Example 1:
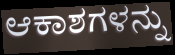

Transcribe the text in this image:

ಆಕಾಶಗಳನ್ನು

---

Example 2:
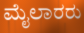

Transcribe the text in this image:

ಮೈಲಾರರು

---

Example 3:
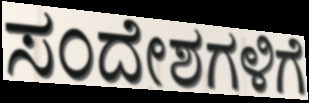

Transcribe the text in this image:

ಸಂದೇಶಗಳಿಗೆ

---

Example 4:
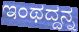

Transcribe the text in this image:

ಇಂಥದ್ದನ್ನ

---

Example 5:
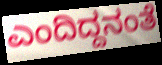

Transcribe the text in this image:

ಎಂದಿದ್ದನಂತೆ